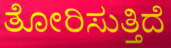
ತೋರಿಸುತ್ತಿದೆ